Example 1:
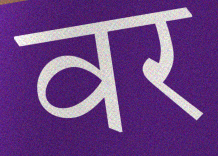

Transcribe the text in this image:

वर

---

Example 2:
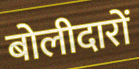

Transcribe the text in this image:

बोलीदारों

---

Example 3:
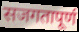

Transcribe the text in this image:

सजगतापूर्ण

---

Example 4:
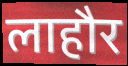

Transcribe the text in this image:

लाहौर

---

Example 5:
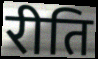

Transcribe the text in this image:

रीति